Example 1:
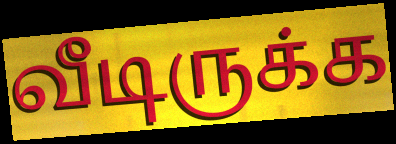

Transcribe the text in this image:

வீடிருக்க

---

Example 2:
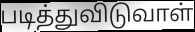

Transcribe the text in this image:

படித்துவிடுவாள்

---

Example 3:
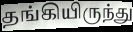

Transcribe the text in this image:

தங்கியிருந்து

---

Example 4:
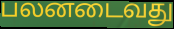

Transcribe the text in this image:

பலனடைவது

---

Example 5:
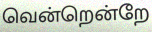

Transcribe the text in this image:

வென்றென்றே